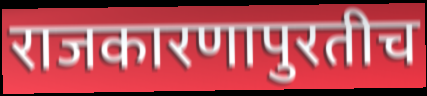
राजकारणापुरतीच